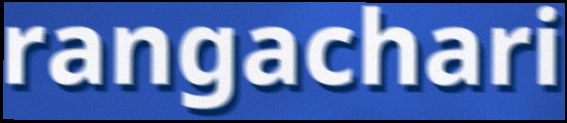
rangachari